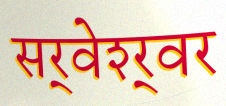
सर्वेश्र्वर